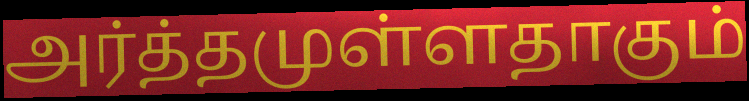
அர்த்தமுள்ளதாகும்